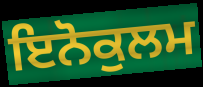
ਇਨੋਕੁਲਮ